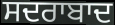
ਸਦਰਾਬਾਦ